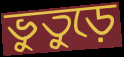
ভুতুড়ে